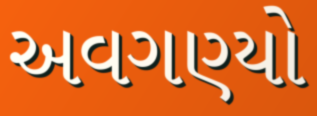
અવગણ્યો